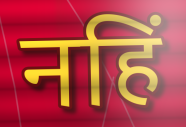
नहिं